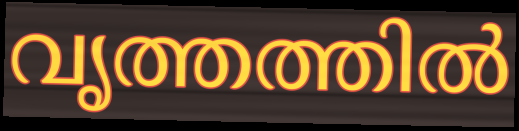
വൃത്തത്തിൽ